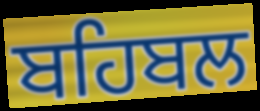
ਬਹਿਬਲ